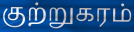
குற்றுகரம்